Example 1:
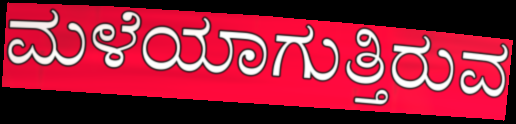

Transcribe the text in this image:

ಮಳೆಯಾಗುತ್ತಿರುವ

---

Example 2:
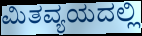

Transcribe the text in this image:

ಮಿತವ್ಯಯದಲ್ಲಿ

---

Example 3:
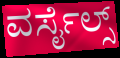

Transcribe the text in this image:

ವರ್ಸೈಲ್ಸ್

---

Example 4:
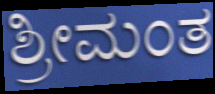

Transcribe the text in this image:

ಶ್ರೀಮಂತ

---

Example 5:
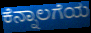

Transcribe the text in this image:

ಕೆನ್ನಾಲಗೆಯ